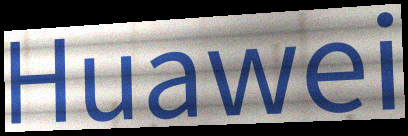
Huawei